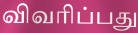
விவரிப்பது